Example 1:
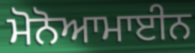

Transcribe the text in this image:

ਮੋਨੋਆਮਾਈਨ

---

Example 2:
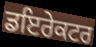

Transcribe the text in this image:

ਡਇਰੇਕਟਰ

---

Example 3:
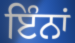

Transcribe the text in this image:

ਇੰਨਾਂ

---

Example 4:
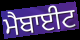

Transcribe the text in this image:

ਮੈਬਾਈਟ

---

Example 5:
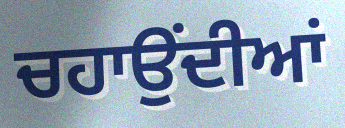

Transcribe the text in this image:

ਚਹਾਉਂਦੀਆਂ